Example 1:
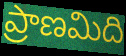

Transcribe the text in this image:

ప్రాణమిది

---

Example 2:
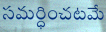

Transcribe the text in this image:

సమర్ధించటమే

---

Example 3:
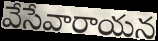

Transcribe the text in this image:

వేసేవారాయన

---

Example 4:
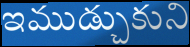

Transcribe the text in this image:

ఇముడ్చుకుని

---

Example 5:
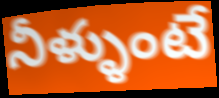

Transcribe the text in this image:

నీళ్ళుంటే